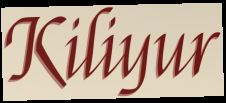
Kiliyur